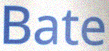
Bate